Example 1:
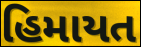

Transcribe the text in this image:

હિમાયત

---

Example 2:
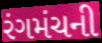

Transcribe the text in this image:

રંગમંચની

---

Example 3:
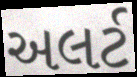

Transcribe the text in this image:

અલર્ટ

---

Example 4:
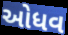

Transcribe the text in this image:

ઓધવ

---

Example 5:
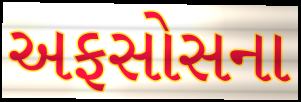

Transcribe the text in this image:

અફસોસના